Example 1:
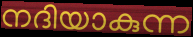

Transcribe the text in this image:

നദിയാകുന്ന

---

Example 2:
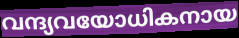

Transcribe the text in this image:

വന്ദ്യവയോധികനായ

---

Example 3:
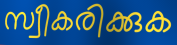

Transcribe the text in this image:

സ്വീകരിക്കുക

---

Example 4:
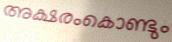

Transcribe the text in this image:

അക്ഷരംകൊണ്ടും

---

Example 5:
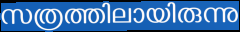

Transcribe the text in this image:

സത്രത്തിലായിരുന്നു